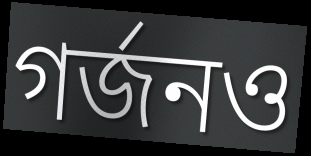
গর্জনও